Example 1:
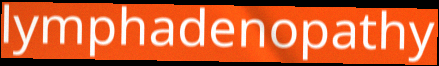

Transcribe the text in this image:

lymphadenopathy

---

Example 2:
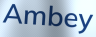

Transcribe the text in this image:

Ambey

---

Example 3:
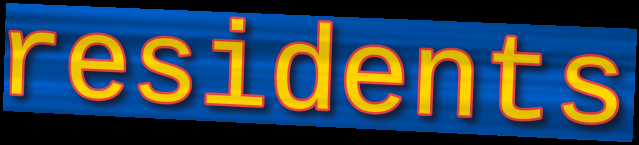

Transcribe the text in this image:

residents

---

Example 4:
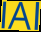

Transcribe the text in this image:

IAI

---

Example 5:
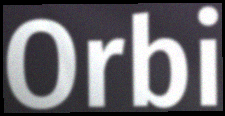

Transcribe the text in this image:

Orbi